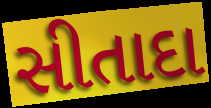
સીતાદા